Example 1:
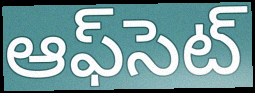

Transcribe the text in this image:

ఆఫ్‌సెట్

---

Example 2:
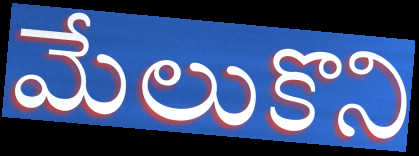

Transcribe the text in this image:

మేలుకొని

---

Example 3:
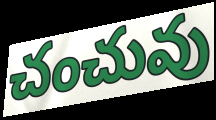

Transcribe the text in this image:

చంచువు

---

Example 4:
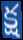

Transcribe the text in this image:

క్ష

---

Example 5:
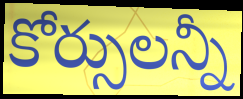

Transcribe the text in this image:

కోర్సులన్నీ